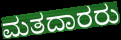
ಮತದಾರರು